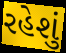
રહેશું